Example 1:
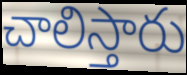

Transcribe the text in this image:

చాలిస్తారు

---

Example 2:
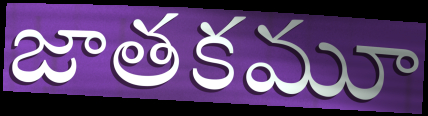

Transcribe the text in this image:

జాతకమూ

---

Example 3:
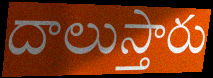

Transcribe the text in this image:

దాలుస్తారు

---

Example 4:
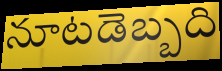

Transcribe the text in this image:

నూటడెబ్బది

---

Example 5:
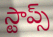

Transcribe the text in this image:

స్టాప్స్